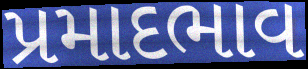
પ્રમાદભાવ